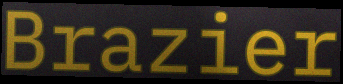
Brazier